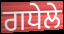
ਗਧੇਲੇ